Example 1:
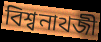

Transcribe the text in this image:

বিশ্বনাথজী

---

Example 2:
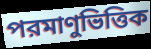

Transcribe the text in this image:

পরমাণুভিত্তিক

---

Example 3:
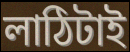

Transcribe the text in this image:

লাঠিটাই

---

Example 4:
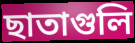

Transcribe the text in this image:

ছাতাগুলি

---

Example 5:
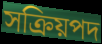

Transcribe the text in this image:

সক্রিয়পদ